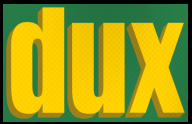
dux